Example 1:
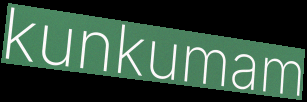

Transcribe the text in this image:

kunkumam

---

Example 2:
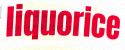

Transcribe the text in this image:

liquorice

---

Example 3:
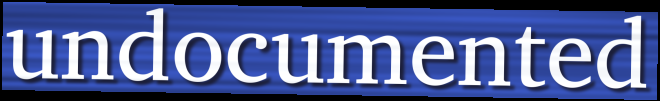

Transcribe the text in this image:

undocumented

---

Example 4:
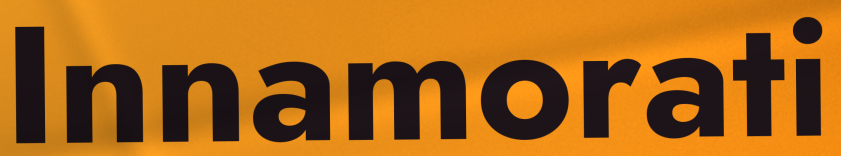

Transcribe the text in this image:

Innamorati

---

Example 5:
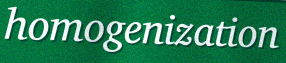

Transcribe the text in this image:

homogenization